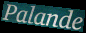
Palande